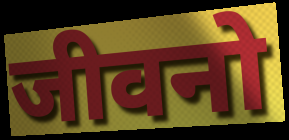
जीवनो